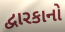
દ્વારકાનો